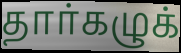
தார்கழுக்